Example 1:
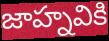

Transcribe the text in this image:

జాహ్నవికి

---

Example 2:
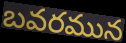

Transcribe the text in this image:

బవరమున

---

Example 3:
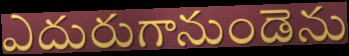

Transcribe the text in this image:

ఎదురుగానుండెను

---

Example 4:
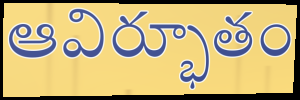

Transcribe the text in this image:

ఆవిర్భూతం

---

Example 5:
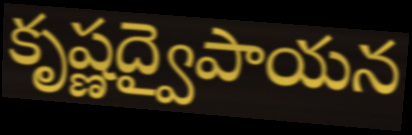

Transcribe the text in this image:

కృష్ణద్వైపాయన